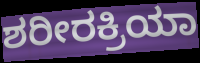
ಶರೀರಕ್ರಿಯಾ